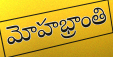
మోహభ్రాంతి